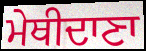
ਮੇਥੀਦਾਣਾ